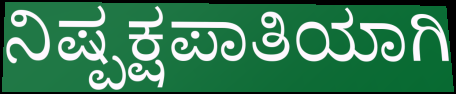
ನಿಷ್ಪಕ್ಷಪಾತಿಯಾಗಿ